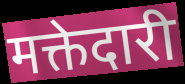
मक्तेदारी